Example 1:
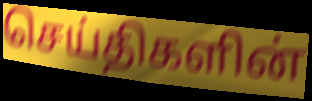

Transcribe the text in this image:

செய்திகளின்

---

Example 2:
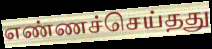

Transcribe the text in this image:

எண்ணச்செய்தது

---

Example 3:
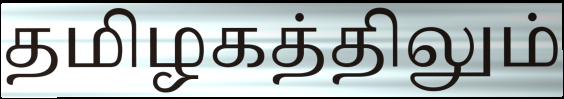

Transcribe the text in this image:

தமிழகத்திலும்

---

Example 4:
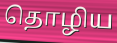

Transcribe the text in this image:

தொழிய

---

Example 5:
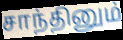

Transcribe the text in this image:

சாந்தினும்